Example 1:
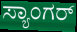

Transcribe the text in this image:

ಸ್ಯಾಂಗರ್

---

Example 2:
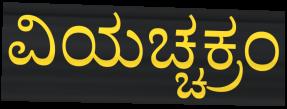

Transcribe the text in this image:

ವಿಯಚ್ಚಕ್ರಂ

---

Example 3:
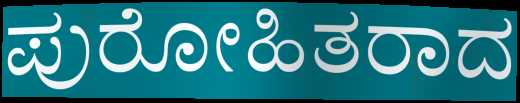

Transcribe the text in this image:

ಪುರೋಹಿತರಾದ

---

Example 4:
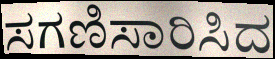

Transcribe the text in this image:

ಸಗಣಿಸಾರಿಸಿದ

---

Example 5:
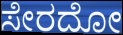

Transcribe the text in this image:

ಸೇರದೋ